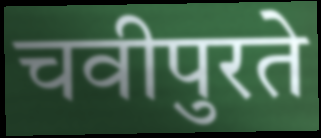
चवीपुरते